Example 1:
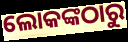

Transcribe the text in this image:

ଲୋକଙ୍କଠାରୁ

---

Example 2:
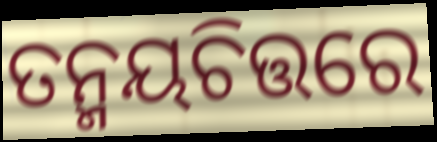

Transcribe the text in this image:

ତନ୍ମୟଚିତ୍ତରେ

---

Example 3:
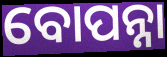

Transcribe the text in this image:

ବୋପନ୍ନା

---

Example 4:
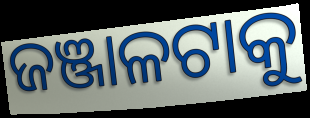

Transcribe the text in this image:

ଜଞ୍ଜାଳଟାକୁ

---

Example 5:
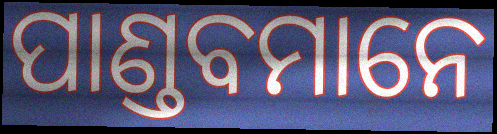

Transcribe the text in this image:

ପାଣ୍ଡବମାନେ